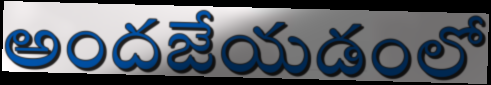
అందజేయడంలో